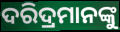
ଦରିଦ୍ରମାନଙ୍କୁ